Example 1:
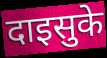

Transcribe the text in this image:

दाइसुके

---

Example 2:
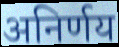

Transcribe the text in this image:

अनिर्णय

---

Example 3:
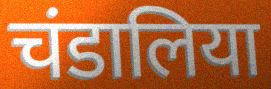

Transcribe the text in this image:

चंडालिया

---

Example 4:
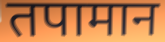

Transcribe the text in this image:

तपामान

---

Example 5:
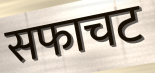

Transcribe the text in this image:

सफाचट